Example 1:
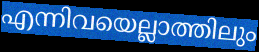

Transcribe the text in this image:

എന്നിവയെല്ലാത്തിലും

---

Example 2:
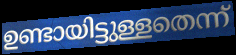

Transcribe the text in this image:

ഉണ്ടായിട്ടുള്ളതെന്ന്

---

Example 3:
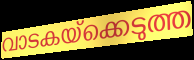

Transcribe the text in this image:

വാടകയ്‌ക്കെടുത്ത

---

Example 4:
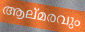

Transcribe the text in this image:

ആല്മരവും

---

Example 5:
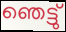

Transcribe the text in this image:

ഞെട്ടു്